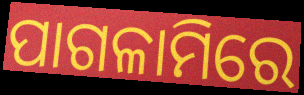
ପାଗଳାମିରେ